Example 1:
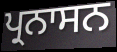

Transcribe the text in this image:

ਪ੍ਰਨਾਸਨ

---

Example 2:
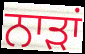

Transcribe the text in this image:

ਨਾੜਾਂ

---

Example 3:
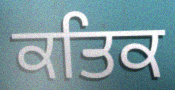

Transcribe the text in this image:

ਕਤਿਕ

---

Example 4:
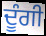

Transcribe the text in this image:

ਦੂੰਗੀ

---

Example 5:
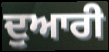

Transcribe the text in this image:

ਦੁਆਰੀ